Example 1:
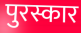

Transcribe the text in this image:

पुरस्कार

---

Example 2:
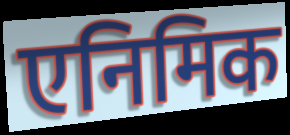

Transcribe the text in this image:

एनिमिक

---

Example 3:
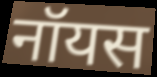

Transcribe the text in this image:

नॉयस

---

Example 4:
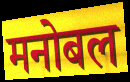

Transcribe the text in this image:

मनोबल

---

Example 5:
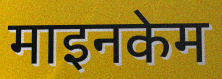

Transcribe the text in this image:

माइनकेम